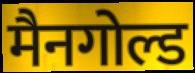
मैनगोल्ड